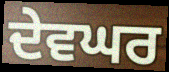
ਦੇਵਘਰ